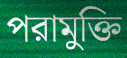
পরামুক্তি